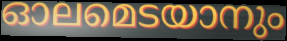
ഓലമെടയാനും